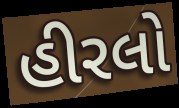
હીરલો